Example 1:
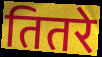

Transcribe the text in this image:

तितरे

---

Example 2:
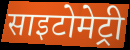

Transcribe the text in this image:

साइटोमेट्री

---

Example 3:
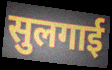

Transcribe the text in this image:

सुलगाई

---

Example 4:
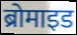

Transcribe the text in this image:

ब्रोमाइड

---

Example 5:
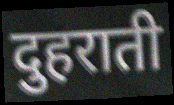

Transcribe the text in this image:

दुहराती